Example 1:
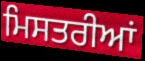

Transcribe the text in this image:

ਮਿਸਤਰੀਆਂ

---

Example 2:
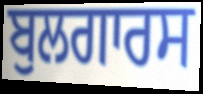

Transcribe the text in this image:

ਬੁਲਗਾਰਸ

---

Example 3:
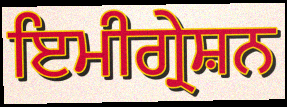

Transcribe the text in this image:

ਇਮੀਗ੍ਰੇਸ਼ਨ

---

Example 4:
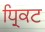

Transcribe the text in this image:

ਧ੍ਰਿਕਟ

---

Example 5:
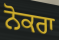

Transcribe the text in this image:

ਨੋਕਰਾ